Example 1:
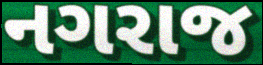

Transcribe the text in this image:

નગરાજ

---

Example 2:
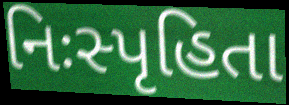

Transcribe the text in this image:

નિઃસ્પૃહિતા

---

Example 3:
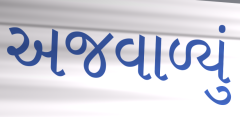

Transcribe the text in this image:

અજવાળ્યું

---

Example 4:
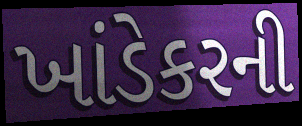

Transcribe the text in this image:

ખાંડેકરની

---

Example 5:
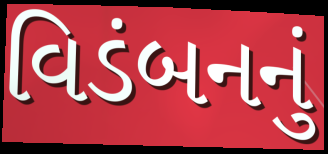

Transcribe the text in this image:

વિડંબનનું